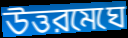
উত্তরমেঘে